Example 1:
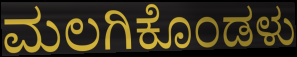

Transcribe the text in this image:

ಮಲಗಿಕೊಂಡಳು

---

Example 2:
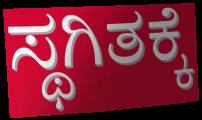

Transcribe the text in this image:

ಸ್ಥಗಿತಕ್ಕೆ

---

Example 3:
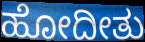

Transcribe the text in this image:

ಹೋದೀತು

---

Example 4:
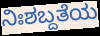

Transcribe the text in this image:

ನಿಃಶಬ್ದತೆಯ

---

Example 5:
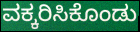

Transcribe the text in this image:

ವಕ್ಕರಿಸಿಕೊಂಡು